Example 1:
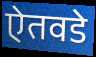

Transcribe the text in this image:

ऐतवडे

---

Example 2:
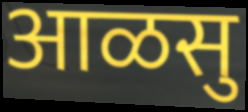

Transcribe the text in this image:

आळसु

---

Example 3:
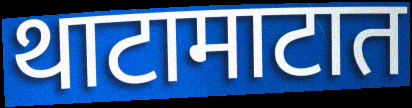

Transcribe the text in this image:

थाटामाटात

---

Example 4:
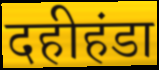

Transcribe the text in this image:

दहीहंडा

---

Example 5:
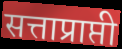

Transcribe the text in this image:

सत्ताप्राप्ती